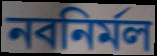
নবনির্মল